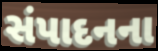
સંપાદનના